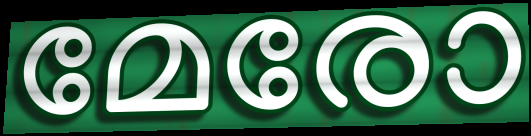
മേരോ